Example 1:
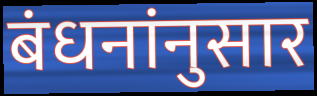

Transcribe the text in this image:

बंधनांनुसार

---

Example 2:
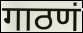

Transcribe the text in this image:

गाठणं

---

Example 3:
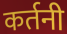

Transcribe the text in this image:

कर्तनी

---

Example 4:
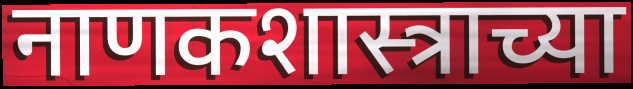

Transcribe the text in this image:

नाणकशास्त्राच्या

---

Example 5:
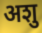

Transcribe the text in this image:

अशु